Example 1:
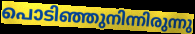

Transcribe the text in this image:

പൊടിഞ്ഞുനിന്നിരുന്നു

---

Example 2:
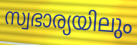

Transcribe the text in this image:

സ്വഭാര്യയിലും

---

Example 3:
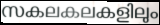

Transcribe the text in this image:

സകലകലകളിലും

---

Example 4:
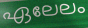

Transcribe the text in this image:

ഏലേലം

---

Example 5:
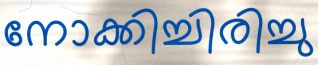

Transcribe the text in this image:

നോക്കിച്ചിരിച്ചു